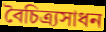
বৈচিত্র্যসাধন